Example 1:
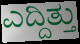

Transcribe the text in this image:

ಎದ್ದಿತ್ತು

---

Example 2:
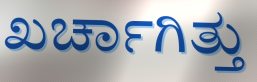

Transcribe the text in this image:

ಖರ್ಚಾಗಿತ್ತು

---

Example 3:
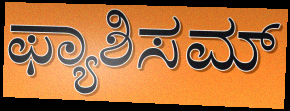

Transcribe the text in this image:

ಫ್ಯಾಶಿಸಮ್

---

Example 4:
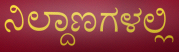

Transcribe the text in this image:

ನಿಲ್ದಾಣಗಳಲ್ಲಿ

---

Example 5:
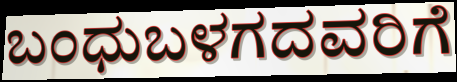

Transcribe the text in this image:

ಬಂಧುಬಳಗದವರಿಗೆ